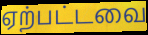
ஏற்பட்டவை